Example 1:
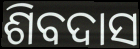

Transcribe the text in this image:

ଶିବଦାସ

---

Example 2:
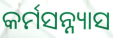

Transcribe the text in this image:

କର୍ମସନ୍ନ୍ୟାସ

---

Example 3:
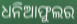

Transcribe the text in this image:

ଧନିଆଫୁଲର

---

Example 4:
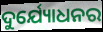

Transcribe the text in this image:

ଦୁର୍ଯ୍ୟୋଧନର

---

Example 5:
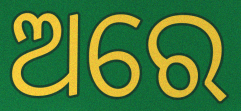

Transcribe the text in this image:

ଅରେ